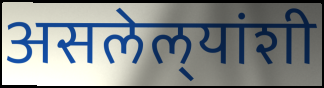
असलेल्यांशी